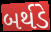
બર્થડે